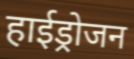
हाईड्रोजन